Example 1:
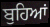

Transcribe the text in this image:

ਬੁਹਿਆਂ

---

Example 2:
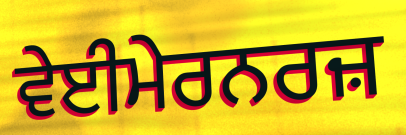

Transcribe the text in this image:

ਵੇਈਮੇਰਨਰਜ਼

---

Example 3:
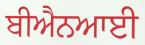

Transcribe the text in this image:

ਬੀਐਨਆਈ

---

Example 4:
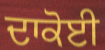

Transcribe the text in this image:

ਦਾਕੋਈ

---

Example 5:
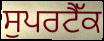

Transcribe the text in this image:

ਸੁਪਰਟੈੱਕ